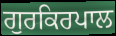
ਗੁਰਕਿਰਪਾਲ